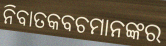
ନିବାତକବଚମାନଙ୍କର